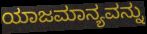
ಯಾಜಮಾನ್ಯವನ್ನು